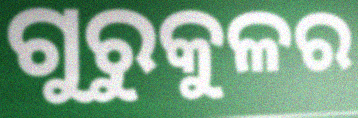
ଗୁରୁକୁଳର